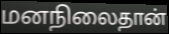
மனநிலைதான்